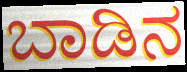
ಬಾಡಿನ